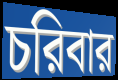
চরিবার